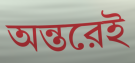
অন্তরেই